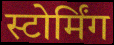
स्टोर्मिंग